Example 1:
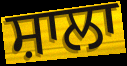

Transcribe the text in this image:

ਸ਼ਾਲਾ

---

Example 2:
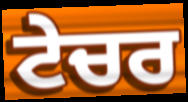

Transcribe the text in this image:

ਟੇਚਰ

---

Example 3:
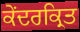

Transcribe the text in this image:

ਕੇਂਦਰਕ੍ਰਿਤ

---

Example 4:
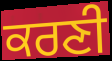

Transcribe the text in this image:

ਕਰਣੀ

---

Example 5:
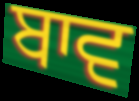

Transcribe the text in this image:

ਬਾਵ